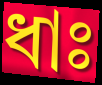
ধাঃ